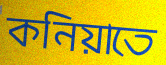
কনিয়াতে